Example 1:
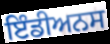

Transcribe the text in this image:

ਇੰਡੀਅਨਸ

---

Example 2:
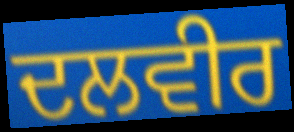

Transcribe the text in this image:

ਦਲਵੀਰ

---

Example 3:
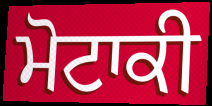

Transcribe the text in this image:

ਮੋਟਾਕੀ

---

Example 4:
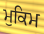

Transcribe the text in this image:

ਮੁਕਿਮ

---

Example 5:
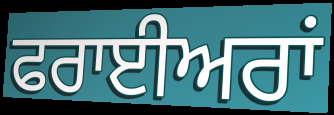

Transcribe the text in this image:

ਫਰਾਈਅਰਾਂ